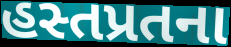
હસ્તપ્રતના